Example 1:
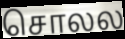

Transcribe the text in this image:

சொலல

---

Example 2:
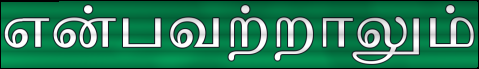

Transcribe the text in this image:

என்பவற்றாலும்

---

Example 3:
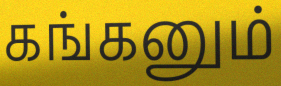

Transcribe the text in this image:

கங்கனும்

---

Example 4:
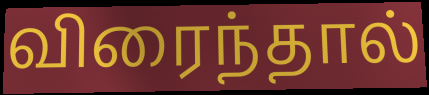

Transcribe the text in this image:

விரைந்தால்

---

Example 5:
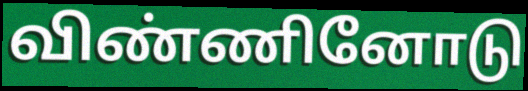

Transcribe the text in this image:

விண்ணினோடு